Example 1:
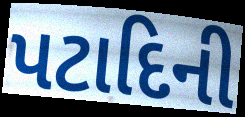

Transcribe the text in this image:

પટાદિની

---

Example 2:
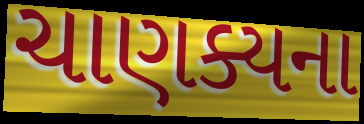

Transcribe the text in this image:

ચાણક્યના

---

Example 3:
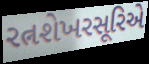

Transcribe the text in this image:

રત્નશેખરસૂરિએ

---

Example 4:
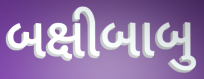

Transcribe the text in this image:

બક્ષીબાબુ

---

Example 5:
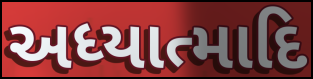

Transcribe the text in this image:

અધ્યાત્માદિ